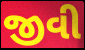
જીવી